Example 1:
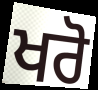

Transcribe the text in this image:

ਖਰੋ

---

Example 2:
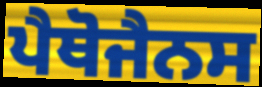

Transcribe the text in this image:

ਪੈਥੋਜੈਨਸ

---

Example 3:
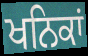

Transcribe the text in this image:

ਖਨਿਕਾਂ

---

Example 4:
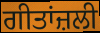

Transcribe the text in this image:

ਗੀਤਾਂਜ਼ਲੀ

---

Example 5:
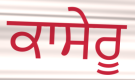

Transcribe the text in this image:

ਕਾਸੇਰੂ